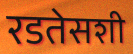
रडतेसशी